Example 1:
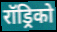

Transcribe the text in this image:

रॉड्रिको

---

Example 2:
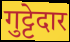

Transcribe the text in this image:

गुट्टेदार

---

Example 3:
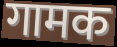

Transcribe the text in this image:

गामक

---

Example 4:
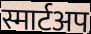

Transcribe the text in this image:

स्मार्टअप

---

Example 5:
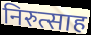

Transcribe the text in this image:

निरुत्साह